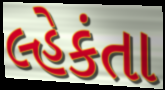
લ્હેકંતા